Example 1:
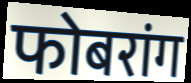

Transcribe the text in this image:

फोबरांग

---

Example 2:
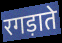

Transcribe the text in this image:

रगड़ाते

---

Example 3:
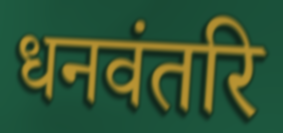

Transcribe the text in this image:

धनवंतरि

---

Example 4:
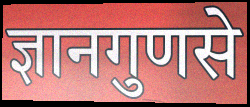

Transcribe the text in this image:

ज्ञानगुणसे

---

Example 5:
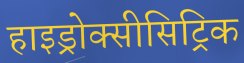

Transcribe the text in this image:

हाइड्रोक्सीसिट्रिक